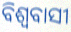
ବିଶ୍ୱବାସୀ